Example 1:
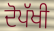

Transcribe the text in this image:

ਦੋਪੱਖੀ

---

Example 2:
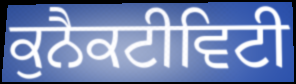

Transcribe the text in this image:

ਕੁਨੈਕਟੀਵਿਟੀ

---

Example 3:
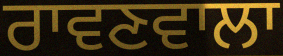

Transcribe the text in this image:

ਰਾਵਣਵਾਲਾ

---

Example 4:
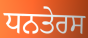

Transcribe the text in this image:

ਧਨਤੇਰਸ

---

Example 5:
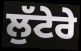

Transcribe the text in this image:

ਲੁੱਟੇਰੇ